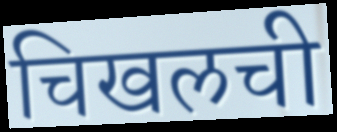
चिखलची